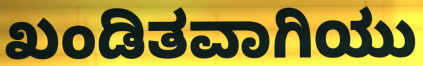
ಖಂಡಿತವಾಗಿಯು